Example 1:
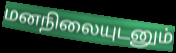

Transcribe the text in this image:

மனநிலையுடனும்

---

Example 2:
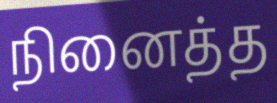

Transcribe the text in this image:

நினைத்த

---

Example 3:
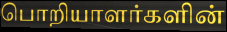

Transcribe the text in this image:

பொறியாளர்களின்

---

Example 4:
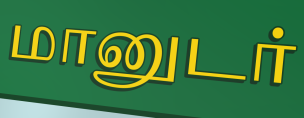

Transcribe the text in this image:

மானுடர்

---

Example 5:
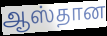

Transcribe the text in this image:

ஆஸ்தான